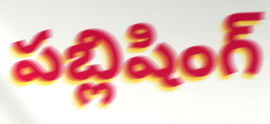
పబ్లిషింగ్